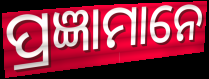
ପ୍ରଜ୍ଞାମାନେ